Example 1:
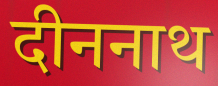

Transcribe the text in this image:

दीननाथ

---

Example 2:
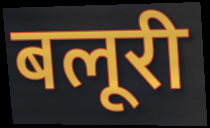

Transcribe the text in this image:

बलूरी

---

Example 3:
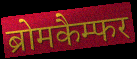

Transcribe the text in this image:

ब्रोमकैम्फर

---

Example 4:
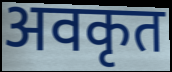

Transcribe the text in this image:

अवकृत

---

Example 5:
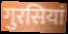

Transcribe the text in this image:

गुरसियां